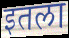
इतला